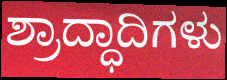
ಶ್ರಾದ್ಧಾದಿಗಳು